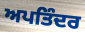
ਅਪਤਿੰਦਰ